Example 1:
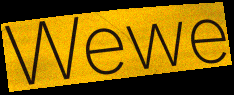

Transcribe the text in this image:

Wewe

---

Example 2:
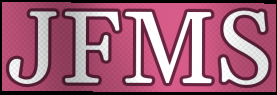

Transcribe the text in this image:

JFMS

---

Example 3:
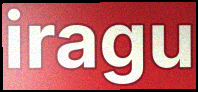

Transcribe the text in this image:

iragu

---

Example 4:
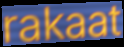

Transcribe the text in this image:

rakaat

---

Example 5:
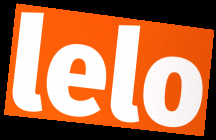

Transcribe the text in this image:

lelo